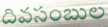
దివసంబుల